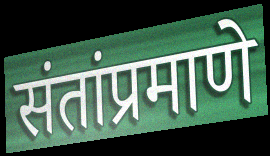
संतांप्रमाणे